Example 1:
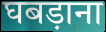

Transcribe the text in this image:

घबड़ाना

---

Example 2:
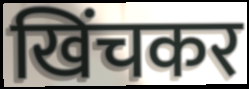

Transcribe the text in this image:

खिंचकर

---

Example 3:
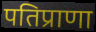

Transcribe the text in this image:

पतिप्राणा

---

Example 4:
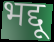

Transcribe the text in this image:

भद्दू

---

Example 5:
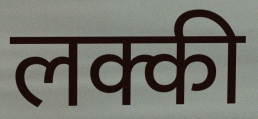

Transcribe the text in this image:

लक्की